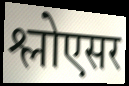
श्लोएसर